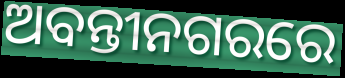
ଅବନ୍ତୀନଗରରେ